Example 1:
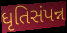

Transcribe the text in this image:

ધૃતિસંપન્ન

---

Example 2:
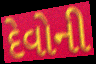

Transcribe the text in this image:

દેવોની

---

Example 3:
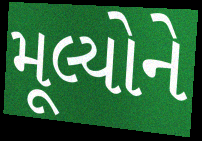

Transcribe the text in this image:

મૂલ્યોને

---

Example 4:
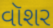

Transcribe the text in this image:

વૉશર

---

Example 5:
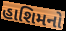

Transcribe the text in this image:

હાશિમનો